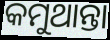
କମୁଥାନ୍ତା